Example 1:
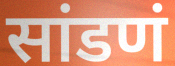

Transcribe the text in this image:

सांडणं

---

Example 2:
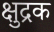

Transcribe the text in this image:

क्षुद्रक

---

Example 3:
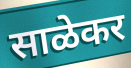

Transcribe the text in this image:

साळेकर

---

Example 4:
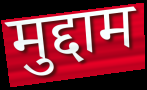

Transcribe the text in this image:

मुद्दाम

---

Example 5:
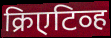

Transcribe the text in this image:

क्रिएटिव्ह